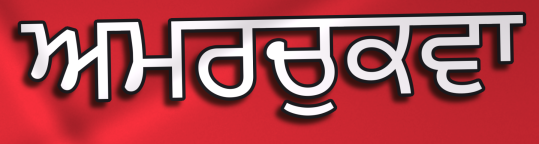
ਅਮਰਚੁਕਵਾ